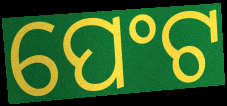
ପେଂଟ